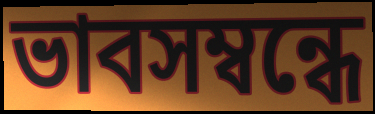
ভাবসম্বন্ধে